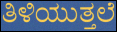
ತಿಳಿಯುತ್ತಲೆ